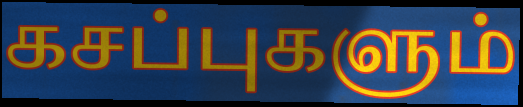
கசப்புகளும்